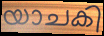
യാചകി